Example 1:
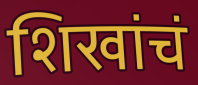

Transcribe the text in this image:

शिखांचं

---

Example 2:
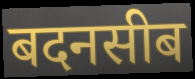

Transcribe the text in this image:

बदनसीब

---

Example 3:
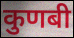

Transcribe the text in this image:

कुणबी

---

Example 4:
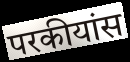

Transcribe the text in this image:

परकीयांस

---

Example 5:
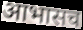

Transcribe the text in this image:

आभासच